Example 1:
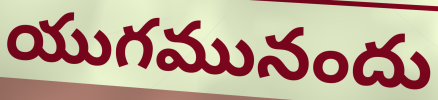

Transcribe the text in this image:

యుగమునందు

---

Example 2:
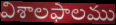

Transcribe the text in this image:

విశాలఫాలము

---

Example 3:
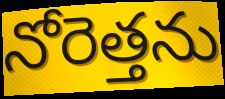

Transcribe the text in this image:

నోరెత్తను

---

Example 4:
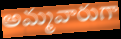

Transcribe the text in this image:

అమ్మవారుగా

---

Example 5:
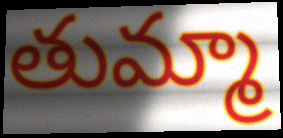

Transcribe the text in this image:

తుమ్మా